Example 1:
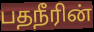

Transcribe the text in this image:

பதநீரின்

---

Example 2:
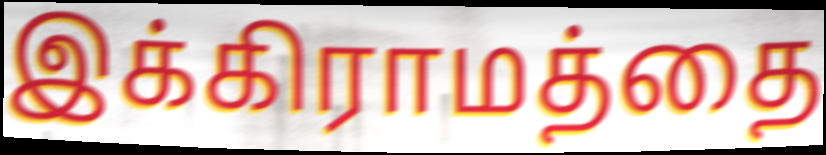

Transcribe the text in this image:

இக்கிராமத்தை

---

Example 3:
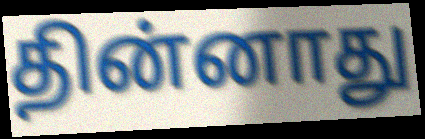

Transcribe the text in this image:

தின்னாது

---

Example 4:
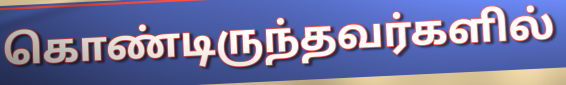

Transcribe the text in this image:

கொண்டிருந்தவர்களில்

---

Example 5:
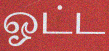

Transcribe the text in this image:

ஓட்ட